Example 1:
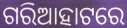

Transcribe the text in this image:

ଗରିଆହାଟରେ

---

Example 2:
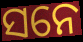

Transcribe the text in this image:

ସନେ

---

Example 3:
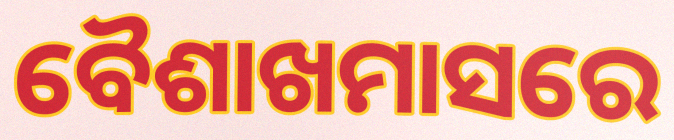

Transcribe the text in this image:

ବୈଶାଖମାସରେ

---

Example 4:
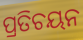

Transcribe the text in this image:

ପ୍ରତିଚୟନ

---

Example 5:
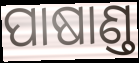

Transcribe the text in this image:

ପାଷାଣ୍ଡ